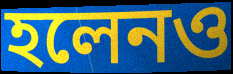
হলেনও